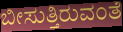
ಬೀಸುತ್ತಿರುವಂತೆ